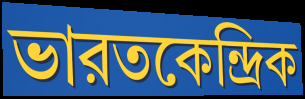
ভারতকেন্দ্রিক